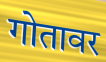
गोतावर